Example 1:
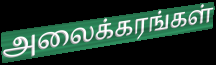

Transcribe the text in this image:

அலைக்கரங்கள்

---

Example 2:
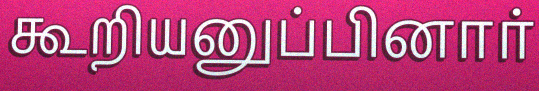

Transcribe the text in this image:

கூறியனுப்பினார்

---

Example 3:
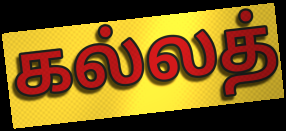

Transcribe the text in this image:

கல்லத்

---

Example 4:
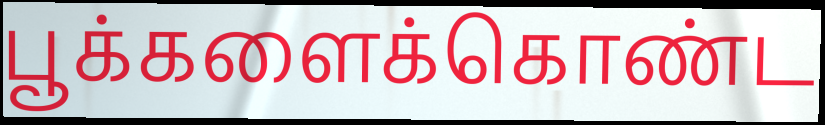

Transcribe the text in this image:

பூக்களைக்கொண்ட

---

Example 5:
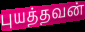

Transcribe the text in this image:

புயத்தவன்